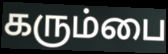
கரும்பை